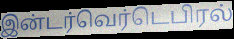
இன்டர்வெர்டெபிரல்